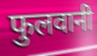
फुलवानी